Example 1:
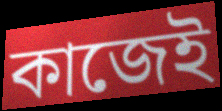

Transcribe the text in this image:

কাজেই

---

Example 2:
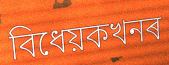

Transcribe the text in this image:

বিধেয়কখনৰ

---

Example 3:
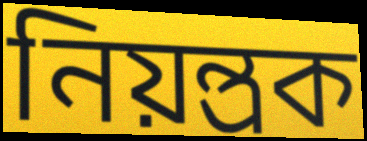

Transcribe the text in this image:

নিয়ন্ত্ৰক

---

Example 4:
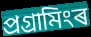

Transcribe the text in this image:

প্ৰগ্ৰামিংৰ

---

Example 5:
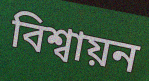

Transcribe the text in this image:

বিশ্বায়ন